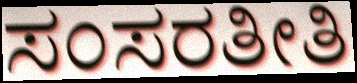
ಸಂಸರತೀತಿ